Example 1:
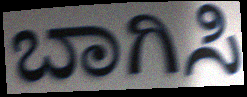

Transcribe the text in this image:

ಬಾಗಿಸಿ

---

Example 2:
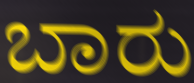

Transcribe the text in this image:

ಬಾರು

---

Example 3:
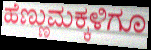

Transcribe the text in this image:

ಹೆಣ್ಣುಮಕ್ಕಳಿಗೂ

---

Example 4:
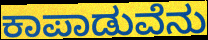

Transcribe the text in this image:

ಕಾಪಾಡುವೆನು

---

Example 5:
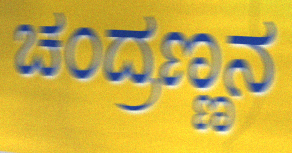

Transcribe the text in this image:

ಚಂದ್ರಣ್ಣನ